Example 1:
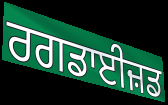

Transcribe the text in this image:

ਰਗਡਾਈਜ਼ਡ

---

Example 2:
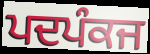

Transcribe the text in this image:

ਪਦਪੰਕਜ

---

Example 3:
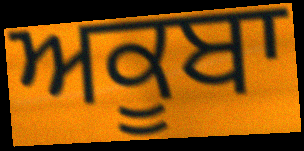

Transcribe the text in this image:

ਅਕੂਬਾ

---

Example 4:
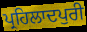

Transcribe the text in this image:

ਪ੍ਰਹਿਲਾਦਪੁਰੀ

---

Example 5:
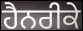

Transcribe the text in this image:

ਹੈਨਰੀਕੇ